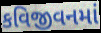
કવિજીવનમાં